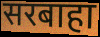
सरबाहा